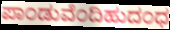
ಪಾಂಡುವೆಂದಿಹುದಂಧ